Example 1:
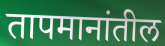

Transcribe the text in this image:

तापमानांतील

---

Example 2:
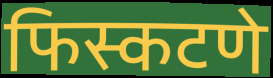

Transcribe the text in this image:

फिस्कटणे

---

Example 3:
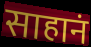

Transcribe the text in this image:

साहानं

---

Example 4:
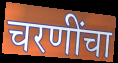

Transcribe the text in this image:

चरणींचा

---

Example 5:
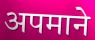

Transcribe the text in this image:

अपमाने